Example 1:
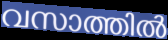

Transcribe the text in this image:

വസാത്തിൽ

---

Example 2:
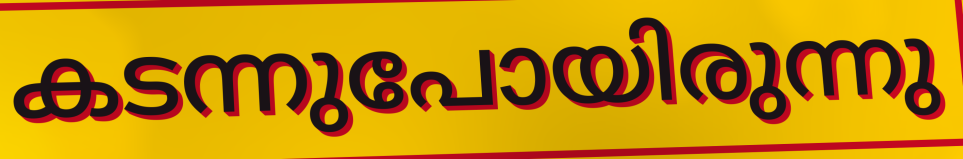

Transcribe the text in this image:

കടന്നുപോയിരുന്നു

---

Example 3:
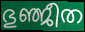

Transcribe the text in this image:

ഭുഞ്ജീത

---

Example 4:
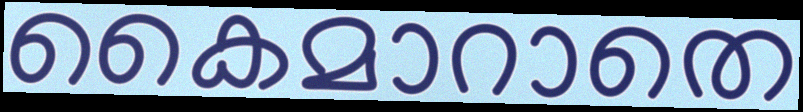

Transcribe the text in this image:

കൈമാറാതെ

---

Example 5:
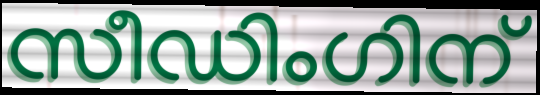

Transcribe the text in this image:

സീഡിംഗിന്